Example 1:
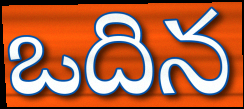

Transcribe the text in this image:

ఒదిన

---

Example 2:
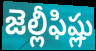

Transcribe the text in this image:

జెల్లీఫిష్లు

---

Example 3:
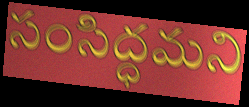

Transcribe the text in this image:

సంసిద్ధమని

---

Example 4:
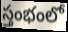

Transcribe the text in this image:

స్తంభంలో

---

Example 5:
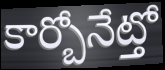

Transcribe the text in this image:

కార్బోనేట్తో